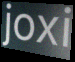
joxi